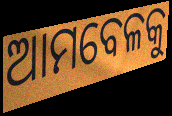
ଆମବେଳକୁ